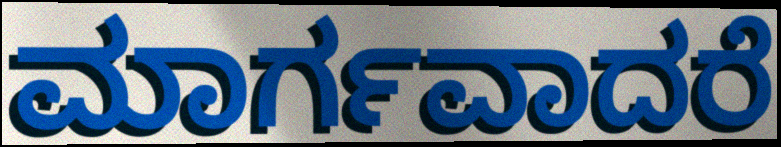
ಮಾರ್ಗವಾದರೆ